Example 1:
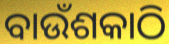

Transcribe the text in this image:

ବାଉଁଶକାଠି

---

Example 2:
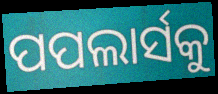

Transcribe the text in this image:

ପପଲାର୍ସକୁ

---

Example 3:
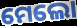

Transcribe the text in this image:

ମେଲୋ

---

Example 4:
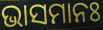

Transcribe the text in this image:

ଭାସମାନଃ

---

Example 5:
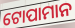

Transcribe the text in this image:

ଟୋପାମାନ